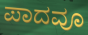
ಪಾದವೂ